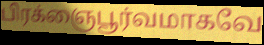
பிரக்ஞைபூர்வமாகவே